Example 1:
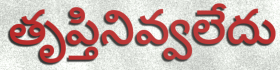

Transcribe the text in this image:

తృప్తినివ్వలేదు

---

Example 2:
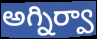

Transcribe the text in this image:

అగ్నిర్వా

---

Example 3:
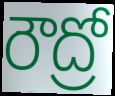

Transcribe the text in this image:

రౌద్రో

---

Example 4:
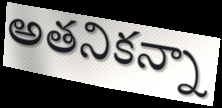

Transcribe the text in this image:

అతనికన్నా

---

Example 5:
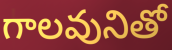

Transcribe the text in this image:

గాలవునితో